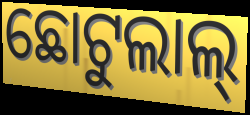
ଛୋଟୁଲାଲ୍